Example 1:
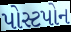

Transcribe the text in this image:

પોસ્ટપોન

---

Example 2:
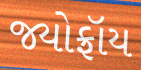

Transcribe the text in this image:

જ્યોફ્રૉય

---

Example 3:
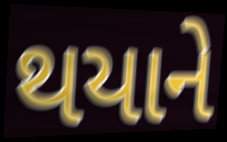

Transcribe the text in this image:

થયાને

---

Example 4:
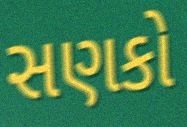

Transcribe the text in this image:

સણકો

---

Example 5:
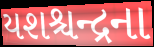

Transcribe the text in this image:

યશશ્ચન્દ્રના